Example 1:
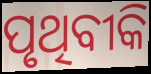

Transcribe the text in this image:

ପୃଥିବୀକି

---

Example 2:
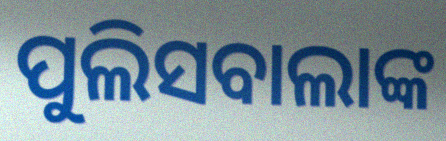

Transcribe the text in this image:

ପୁଲିସବାଲାଙ୍କ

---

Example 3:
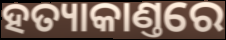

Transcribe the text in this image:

ହତ୍ୟାକାଣ୍ତରେ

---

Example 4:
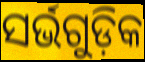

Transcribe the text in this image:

ସର୍ଭଗୁଡ଼ିକ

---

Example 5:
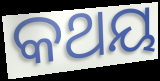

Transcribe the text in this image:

କଥୟ